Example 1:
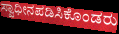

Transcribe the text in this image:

ಸ್ವಾಧೀನಪಡಿಸಿಕೊಂಡರು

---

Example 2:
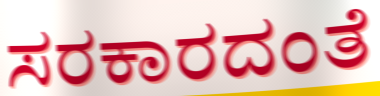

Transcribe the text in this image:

ಸರಕಾರದಂತೆ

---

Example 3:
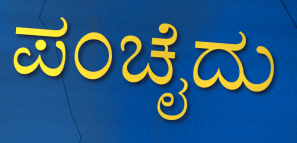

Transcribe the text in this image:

ಪಂಚೈದು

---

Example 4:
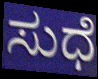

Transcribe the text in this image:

ಸುಧೆ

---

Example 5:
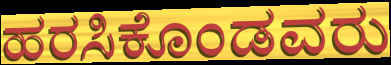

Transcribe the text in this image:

ಹರಸಿಕೊಂಡವರು